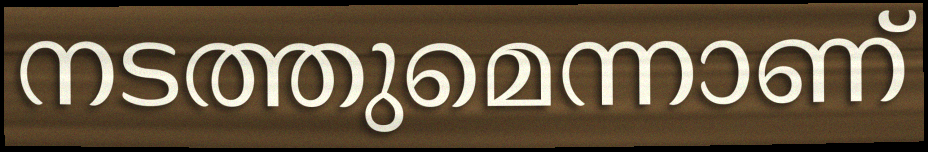
നടത്തുമെന്നാണ്